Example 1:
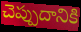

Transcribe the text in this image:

చెప్పుదానికి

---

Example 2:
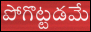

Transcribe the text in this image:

పోగొట్టడమే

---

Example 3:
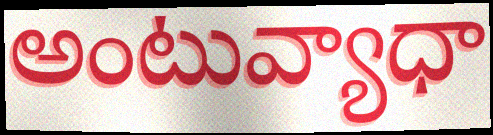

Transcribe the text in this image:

అంటువ్యాధా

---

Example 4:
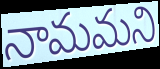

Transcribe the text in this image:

నామమని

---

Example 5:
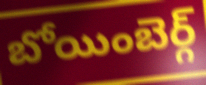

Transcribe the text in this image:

బోయింబెర్గ్